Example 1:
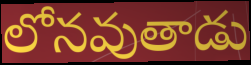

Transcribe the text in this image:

లోనవుతాడు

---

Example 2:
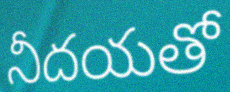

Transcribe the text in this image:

నీదయతో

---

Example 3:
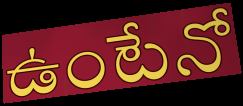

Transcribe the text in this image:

ఉంటేనో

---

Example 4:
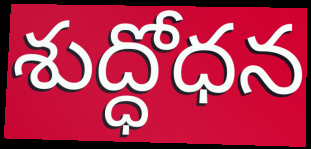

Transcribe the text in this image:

శుద్ధోధన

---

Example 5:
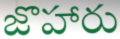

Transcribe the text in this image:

జొహారు